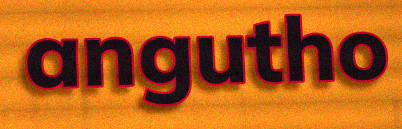
angutho